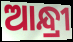
ଆନ୍ଧ୍ରୀ